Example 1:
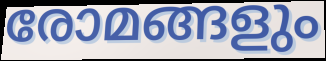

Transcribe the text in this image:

രോമങ്ങളും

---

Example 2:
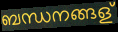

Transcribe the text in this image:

ബന്ധനങ്ങള്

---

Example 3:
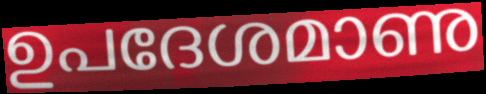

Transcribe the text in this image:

ഉപദേശമാണു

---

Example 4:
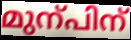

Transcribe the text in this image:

മുന്പിന്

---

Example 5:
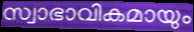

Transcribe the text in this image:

സ്വാഭാവികമായും